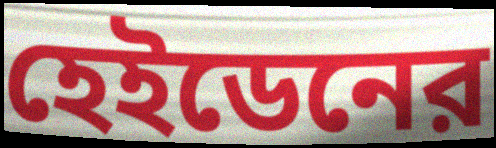
হেইডেনের